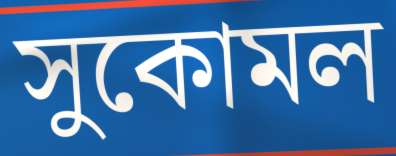
সুকোমল